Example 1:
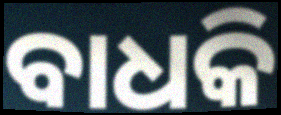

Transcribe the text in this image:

ବାଧକି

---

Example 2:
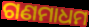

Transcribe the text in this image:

ଗଣମାଧମ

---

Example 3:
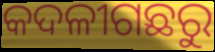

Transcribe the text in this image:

କଦଳୀଗଛରୁ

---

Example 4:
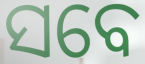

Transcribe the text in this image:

ସବେ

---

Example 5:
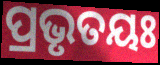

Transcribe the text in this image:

ପ୍ରଭୃତୟଃ